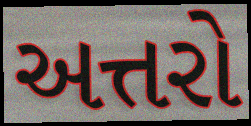
અત્તરો